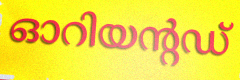
ഓറിയന്റഡ്